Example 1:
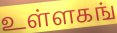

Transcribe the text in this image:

உள்ளகங்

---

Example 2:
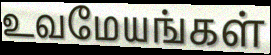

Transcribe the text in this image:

உவமேயங்கள்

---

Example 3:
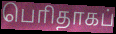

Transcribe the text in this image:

பெரிதாகப்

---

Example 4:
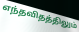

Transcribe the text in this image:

எந்தவிதத்திலும்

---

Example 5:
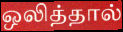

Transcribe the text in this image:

ஒலித்தால்